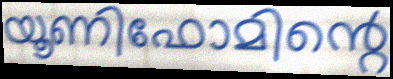
യൂണിഫോമിന്റെ